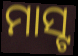
ମାସ୍ଟ